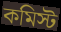
কমিস্ট